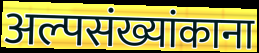
अल्पसंख्यांकाना